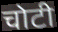
चोटी